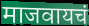
माजवायचं